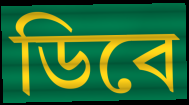
ডিবে